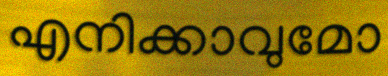
എനിക്കാവുമോ